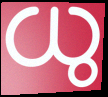
ധു